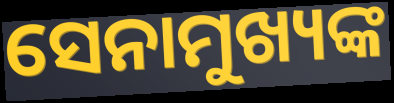
ସେନାମୁଖ୍ୟଙ୍କ